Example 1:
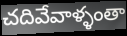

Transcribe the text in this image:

చదివేవాళ్ళంతా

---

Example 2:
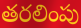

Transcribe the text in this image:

తరలింపు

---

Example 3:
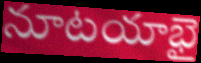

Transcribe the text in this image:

నూటయాభై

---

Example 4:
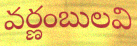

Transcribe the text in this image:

వర్ణంబులవి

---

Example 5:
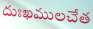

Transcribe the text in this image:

దుఃఖములచేత